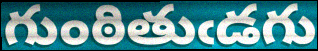
గుంఠితుఁడగు